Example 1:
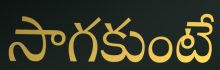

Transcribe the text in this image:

సాగకుంటే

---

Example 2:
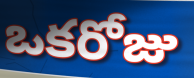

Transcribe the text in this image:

ఒకరోజు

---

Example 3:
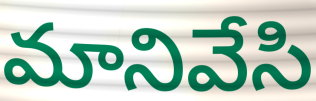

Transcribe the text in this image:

మానివేసి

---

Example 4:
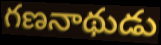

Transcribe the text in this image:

గణనాథుడు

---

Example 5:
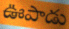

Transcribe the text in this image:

ఊపాడు